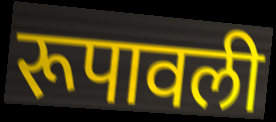
रूपावली